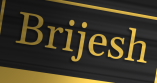
Brijesh